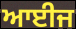
ਆਈਜ